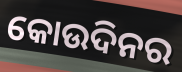
କୋଉଦିନର